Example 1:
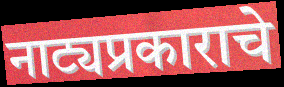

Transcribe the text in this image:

नाट्यप्रकाराचे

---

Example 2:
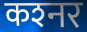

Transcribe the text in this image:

कश्‍नर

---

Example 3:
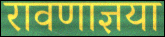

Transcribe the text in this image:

रावणाज्ञया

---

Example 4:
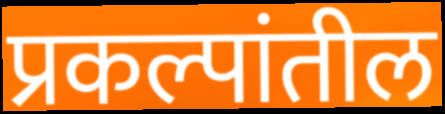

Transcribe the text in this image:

प्रकल्पांतील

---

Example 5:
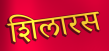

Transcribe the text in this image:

शिलारस